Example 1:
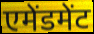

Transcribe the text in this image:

एमेंडमेंट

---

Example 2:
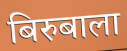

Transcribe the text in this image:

बिरुबाला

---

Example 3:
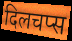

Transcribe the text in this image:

दिलचप्स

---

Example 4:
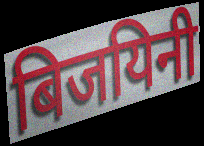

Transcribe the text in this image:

बिजयिनी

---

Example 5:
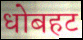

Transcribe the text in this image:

धोबहट